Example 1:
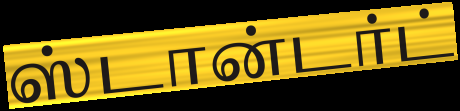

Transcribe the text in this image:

ஸ்டான்டர்ட்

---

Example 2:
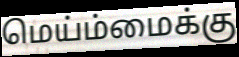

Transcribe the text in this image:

மெய்ம்மைக்கு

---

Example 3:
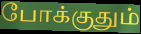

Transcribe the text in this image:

போக்குதும்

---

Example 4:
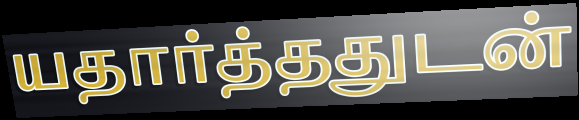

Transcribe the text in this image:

யதார்த்ததுடன்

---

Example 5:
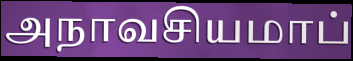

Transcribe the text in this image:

அநாவசியமாப்